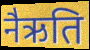
नैऋति